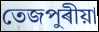
তেজপুৰীয়া